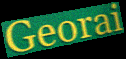
Georai